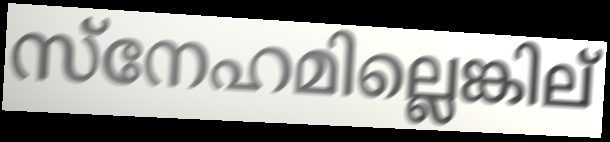
സ്നേഹമില്ലെങ്കില്